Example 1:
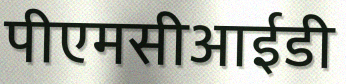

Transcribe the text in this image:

पीएमसीआईडी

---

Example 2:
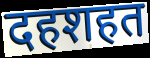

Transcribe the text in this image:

दहशहत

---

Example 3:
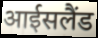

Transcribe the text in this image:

आईसलैंड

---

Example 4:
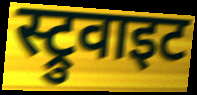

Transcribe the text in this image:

स्ट्रुवाइट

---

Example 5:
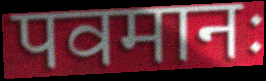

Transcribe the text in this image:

पवमानः